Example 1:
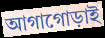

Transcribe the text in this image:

আগাগোড়াই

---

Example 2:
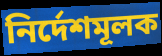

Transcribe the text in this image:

নির্দেশমূলক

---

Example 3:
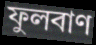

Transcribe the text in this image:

ফুলবাণ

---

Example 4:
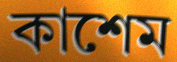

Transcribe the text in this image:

কাশেম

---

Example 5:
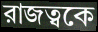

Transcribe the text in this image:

রাজত্বকে